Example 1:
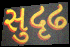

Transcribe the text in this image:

સુદૃઢ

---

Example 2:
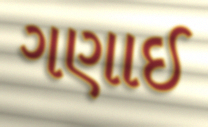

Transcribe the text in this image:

ગણાઈ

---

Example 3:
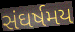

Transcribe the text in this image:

સંઘર્ષમય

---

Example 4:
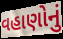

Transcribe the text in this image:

વહાણોનું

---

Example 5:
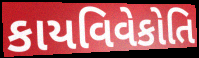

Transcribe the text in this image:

કાયવિવેકોતિ